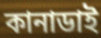
কানাডাই